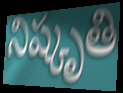
నిష్కృతి